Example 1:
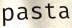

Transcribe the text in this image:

pasta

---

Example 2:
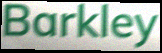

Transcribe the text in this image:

Barkley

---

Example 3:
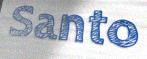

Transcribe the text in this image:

Santo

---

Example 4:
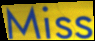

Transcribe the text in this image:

Miss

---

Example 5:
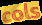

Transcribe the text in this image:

cols